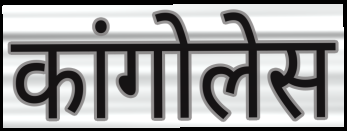
कांगोलेस